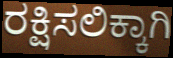
ರಕ್ಷಿಸಲಿಕ್ಕಾಗಿ